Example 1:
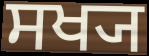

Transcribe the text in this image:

ਸਖ੍ਯ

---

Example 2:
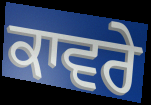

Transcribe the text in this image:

ਕਾਵਰੇ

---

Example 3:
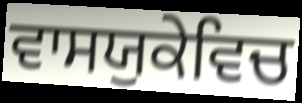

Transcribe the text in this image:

ਵਾਸਯੁਕੇਵਿਚ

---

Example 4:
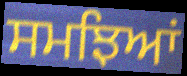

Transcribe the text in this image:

ਸਮਝਿਆਂ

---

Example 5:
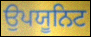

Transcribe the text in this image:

ਉਪਯੂਨਿਟ